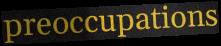
preoccupations